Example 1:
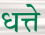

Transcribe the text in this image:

धत्ते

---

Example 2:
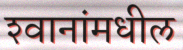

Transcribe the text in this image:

श्वानांमधील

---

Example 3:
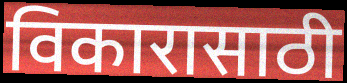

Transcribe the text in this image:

विकारासाठी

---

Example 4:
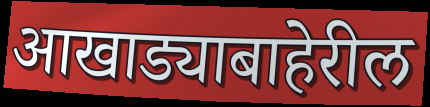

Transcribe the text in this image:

आखाड्याबाहेरील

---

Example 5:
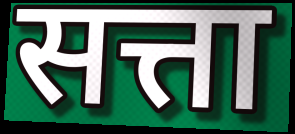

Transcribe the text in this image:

सत्ता